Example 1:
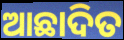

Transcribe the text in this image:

ଆଛାଦିତ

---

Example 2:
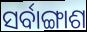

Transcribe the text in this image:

ସର୍ବାଙ୍ଗାଶ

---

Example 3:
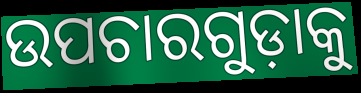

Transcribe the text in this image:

ଉପଚାରଗୁଡ଼ାକୁ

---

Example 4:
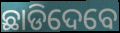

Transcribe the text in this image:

ଛାଡିଦେବେ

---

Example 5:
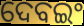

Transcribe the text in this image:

ଦେବଇଂ